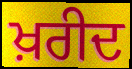
ਖ਼ਰੀਦ